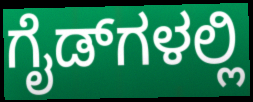
ಗೈಡ್‌ಗಳಲ್ಲಿ